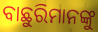
ବାଛୁରିମାନଙ୍କୁ